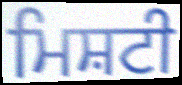
ਮਿਸ਼ਟੀ